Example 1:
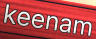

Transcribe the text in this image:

keenam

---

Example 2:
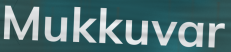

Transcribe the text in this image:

Mukkuvar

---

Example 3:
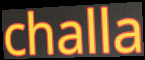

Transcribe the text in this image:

challa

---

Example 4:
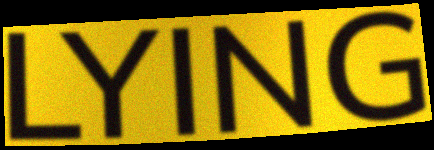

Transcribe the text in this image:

LYING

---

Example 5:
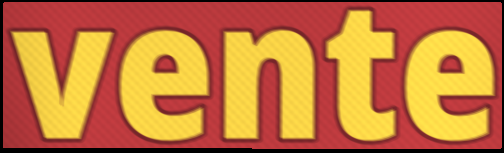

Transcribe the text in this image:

vente